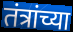
तंत्रांच्या